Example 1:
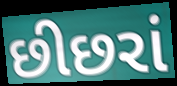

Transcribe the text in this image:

છીછરાં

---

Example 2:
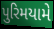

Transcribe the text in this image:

પુરિમયામે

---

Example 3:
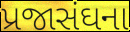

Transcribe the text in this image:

પ્રજાસંઘના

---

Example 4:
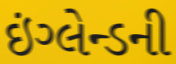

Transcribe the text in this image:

ઇંગ્લેન્ડની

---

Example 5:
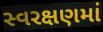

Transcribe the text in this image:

સ્વરક્ષણમાં